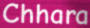
Chhara